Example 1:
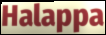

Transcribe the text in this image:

Halappa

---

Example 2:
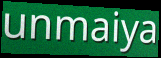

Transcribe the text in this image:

unmaiya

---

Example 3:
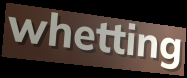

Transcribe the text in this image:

whetting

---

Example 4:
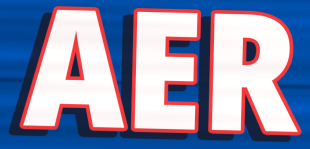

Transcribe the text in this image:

AER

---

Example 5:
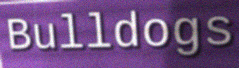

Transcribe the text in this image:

Bulldogs